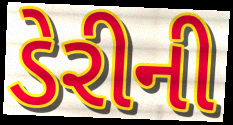
ડેરીની